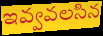
ఇవ్వవలసిన